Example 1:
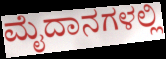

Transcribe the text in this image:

ಮೈದಾನಗಳಲ್ಲಿ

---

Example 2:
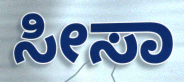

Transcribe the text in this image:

ಸೀಸಾ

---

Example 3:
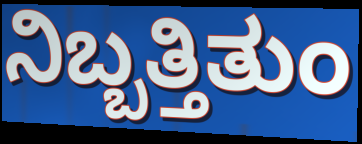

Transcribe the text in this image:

ನಿಬ್ಬತ್ತಿತುಂ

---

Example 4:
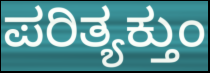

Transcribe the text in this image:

ಪರಿತ್ಯಕ್ತುಂ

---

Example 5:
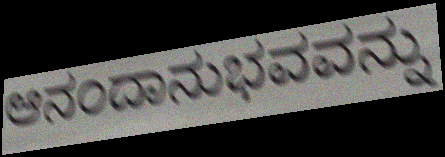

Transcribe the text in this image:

ಆನಂದಾನುಭವವನ್ನು